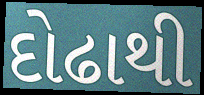
દોઢાથી